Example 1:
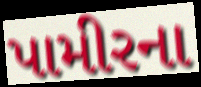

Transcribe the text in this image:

પામીરના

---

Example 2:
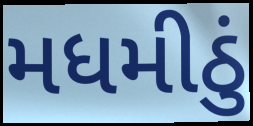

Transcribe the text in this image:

મધમીઠું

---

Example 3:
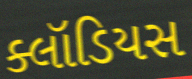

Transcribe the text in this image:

ક્લૉડિયસ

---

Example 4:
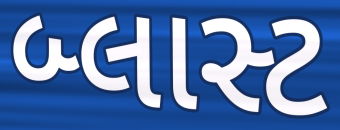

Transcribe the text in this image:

બ્લાસ્ટ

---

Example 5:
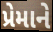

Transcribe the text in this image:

પ્રેમાને